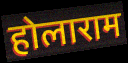
होलाराम